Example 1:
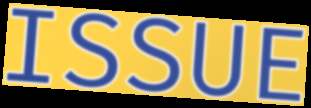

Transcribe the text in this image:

ISSUE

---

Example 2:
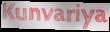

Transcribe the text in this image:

Kunvariya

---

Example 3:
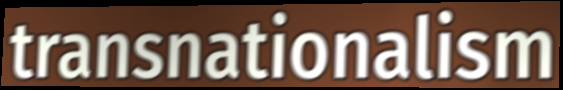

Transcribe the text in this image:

transnationalism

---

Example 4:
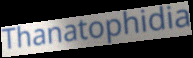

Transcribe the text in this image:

Thanatophidia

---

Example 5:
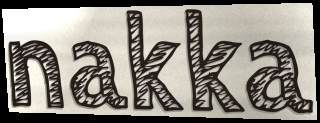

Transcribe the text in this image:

nakka